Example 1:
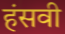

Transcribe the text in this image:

हंसवी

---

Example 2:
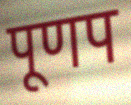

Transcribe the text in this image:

पूणप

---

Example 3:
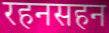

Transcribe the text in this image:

रहनसहन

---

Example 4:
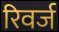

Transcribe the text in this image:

रिवर्ज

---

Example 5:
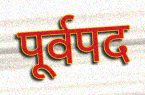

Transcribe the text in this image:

पूर्वपद